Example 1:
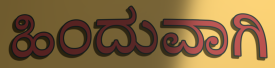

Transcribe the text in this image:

ಹಿಂದುವಾಗಿ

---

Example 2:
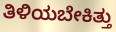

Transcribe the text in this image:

ತಿಳಿಯಬೇಕಿತ್ತು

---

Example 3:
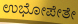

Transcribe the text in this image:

ಉಭೋಪೇತೇ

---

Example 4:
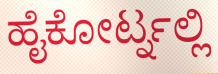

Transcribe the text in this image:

ಹೈಕೋರ್ಟ್ನಲ್ಲಿ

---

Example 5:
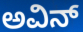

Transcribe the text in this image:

ಅವಿನ್